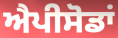
ਐਪੀਸੋਡਾਂ